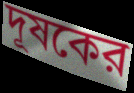
দূষকের